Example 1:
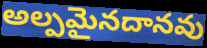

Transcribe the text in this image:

అల్పమైనదానవు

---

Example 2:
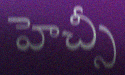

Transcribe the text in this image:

హెచ్సీ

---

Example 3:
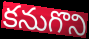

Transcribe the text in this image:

కనుగొని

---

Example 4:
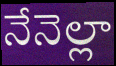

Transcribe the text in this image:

నేనెల్లా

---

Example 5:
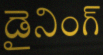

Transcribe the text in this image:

డైనింగ్